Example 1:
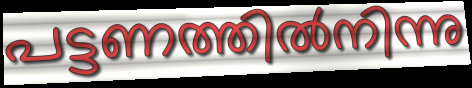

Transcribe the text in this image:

പട്ടണത്തിൽനിന്നു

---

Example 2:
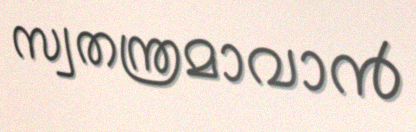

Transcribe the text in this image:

സ്വതന്ത്രമാവാൻ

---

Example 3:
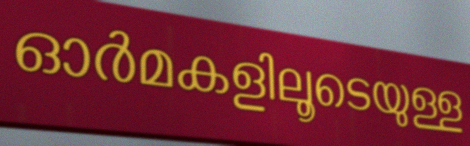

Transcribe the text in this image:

ഓർമകളിലൂടെയുള്ള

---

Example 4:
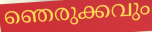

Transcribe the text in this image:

ഞെരുക്കവും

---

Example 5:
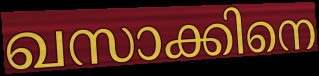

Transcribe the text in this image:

ഖസാക്കിനെ